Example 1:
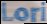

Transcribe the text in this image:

Lori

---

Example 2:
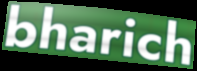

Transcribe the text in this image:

bharich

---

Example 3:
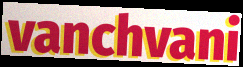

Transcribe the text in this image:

vanchvani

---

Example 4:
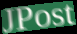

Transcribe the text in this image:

JPost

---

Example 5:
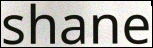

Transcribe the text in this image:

shane